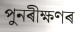
পুনৰীক্ষণৰ